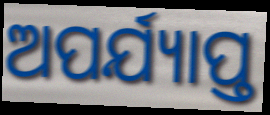
ଅପର୍ଯ୍ୟାପ୍ତ